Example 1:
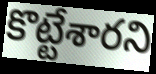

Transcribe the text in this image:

కొట్టేశారని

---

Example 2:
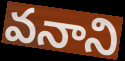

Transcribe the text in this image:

వనాని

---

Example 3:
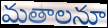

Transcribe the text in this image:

మతాలనూ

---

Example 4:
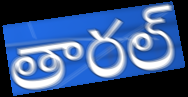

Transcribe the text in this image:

తారల్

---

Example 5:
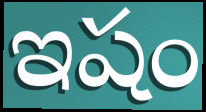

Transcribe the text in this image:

ఇషం